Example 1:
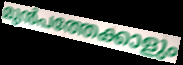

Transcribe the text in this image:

മുൻപത്തേക്കാളും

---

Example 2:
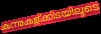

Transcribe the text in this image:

കുന്നുകള്ക്കിടയിലൂടെ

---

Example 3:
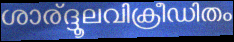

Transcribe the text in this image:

ശാര്ദ്ദൂലവിക്രീഡിതം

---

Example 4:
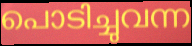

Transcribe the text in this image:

പൊടിച്ചുവന്ന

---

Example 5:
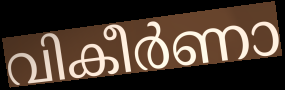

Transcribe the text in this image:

വികീർണാ